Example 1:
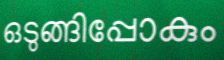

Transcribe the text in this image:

ഒടുങ്ങിപ്പോകും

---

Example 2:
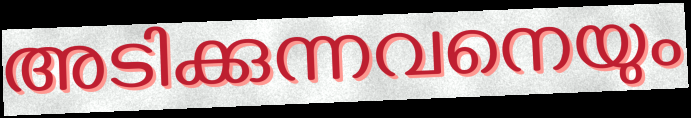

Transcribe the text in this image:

അടിക്കുന്നവനെയും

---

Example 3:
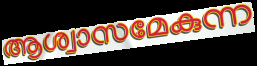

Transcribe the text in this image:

ആശ്വാസമേകുന്ന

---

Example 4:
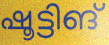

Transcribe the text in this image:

ഷൂട്ടിങ്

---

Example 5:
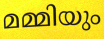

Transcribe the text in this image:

മമ്മിയും